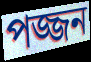
পজ্জন